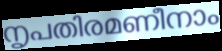
നൃപതിരമണീനാം